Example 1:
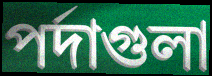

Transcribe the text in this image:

পর্দাগুলা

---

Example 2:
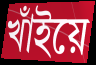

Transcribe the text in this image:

খাঁইয়ে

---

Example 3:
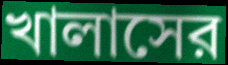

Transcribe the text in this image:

খালাসের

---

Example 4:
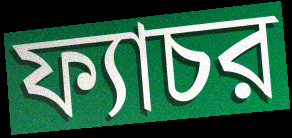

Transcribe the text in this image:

ফ্যাচর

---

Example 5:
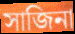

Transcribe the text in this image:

সাজিনা